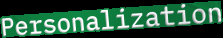
Personalization